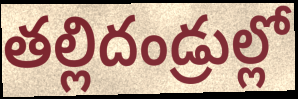
తల్లిదండ్రుల్లో